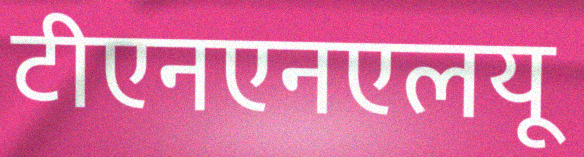
टीएनएनएलयू